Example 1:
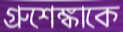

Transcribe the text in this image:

গ্রুশেঙ্কাকে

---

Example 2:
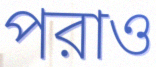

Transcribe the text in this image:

পরাও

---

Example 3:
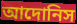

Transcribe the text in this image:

আদোনিস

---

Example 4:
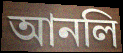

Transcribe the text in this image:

আনলি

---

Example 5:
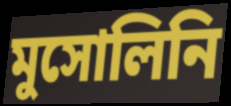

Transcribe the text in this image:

মুসোলিনি